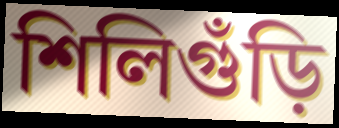
শিলিগুঁড়ি